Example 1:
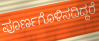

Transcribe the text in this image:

ಪೂರ್ಣಗೊಳಿಸದಿದ್ದರೆ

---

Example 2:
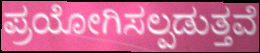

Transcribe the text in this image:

ಪ್ರಯೋಗಿಸಲ್ಪಡುತ್ತವೆ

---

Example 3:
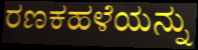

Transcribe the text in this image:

ರಣಕಹಳೆಯನ್ನು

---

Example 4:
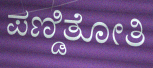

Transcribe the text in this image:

ಪಣ್ಡಿತೋತಿ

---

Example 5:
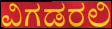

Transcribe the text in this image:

ವಿಗಡರಲಿ